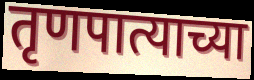
तृणपात्याच्या